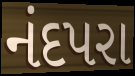
નંદપરા